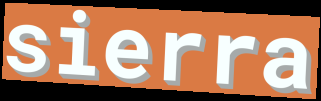
sierra